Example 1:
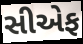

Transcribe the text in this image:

સીએફ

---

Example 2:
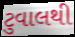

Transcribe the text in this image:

ટુવાલથી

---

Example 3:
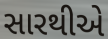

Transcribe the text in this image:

સારથીએ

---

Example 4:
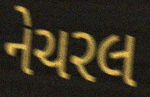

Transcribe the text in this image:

નેચરલ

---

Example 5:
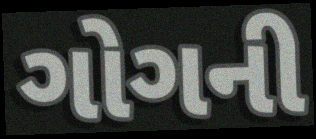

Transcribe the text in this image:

ગોગની